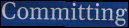
Committing